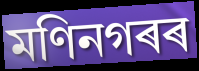
মণিনগৰৰ